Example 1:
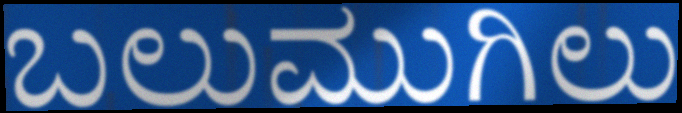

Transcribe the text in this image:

ಬಲುಮುಗಿಲು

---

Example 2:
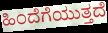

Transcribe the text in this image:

ಹಿಂದೆಗೆಯುತ್ತದೆ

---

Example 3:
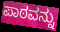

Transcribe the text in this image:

ಪಾಠವನ್ನು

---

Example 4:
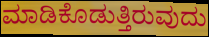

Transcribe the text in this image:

ಮಾಡಿಕೊಡುತ್ತಿರುವುದು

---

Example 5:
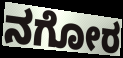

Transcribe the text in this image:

ನಗೋರ